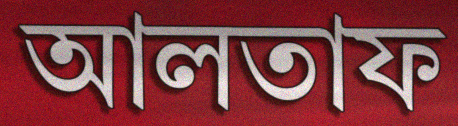
আলতাফ